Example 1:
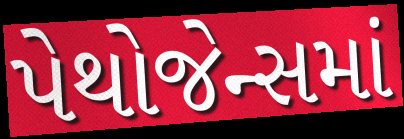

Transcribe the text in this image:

પેથોજેન્સમાં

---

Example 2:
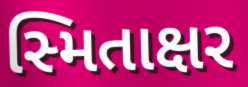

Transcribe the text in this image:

સ્મિતાક્ષર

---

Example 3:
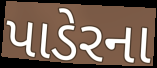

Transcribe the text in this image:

પાડેરના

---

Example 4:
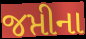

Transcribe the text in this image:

જપ્તીના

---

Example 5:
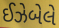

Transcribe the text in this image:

ઈઝેબેલે